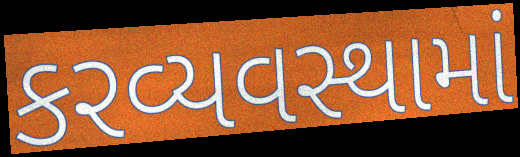
કરવ્યવસ્થામાં